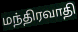
மந்திரவாதி